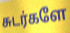
சுடர்களே